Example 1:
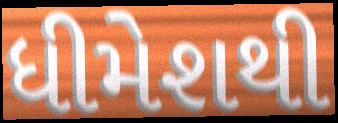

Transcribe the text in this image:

ધીમેશથી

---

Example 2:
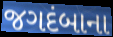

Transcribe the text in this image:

જગદંબાના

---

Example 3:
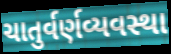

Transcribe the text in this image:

ચાતુર્વર્ણવ્યવસ્થા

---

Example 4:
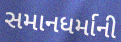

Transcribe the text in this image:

સમાનધર્માની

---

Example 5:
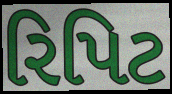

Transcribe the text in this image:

રિપિટ